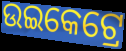
ଉଇକେଟ୍ରେ